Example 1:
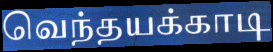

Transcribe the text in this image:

வெந்தயக்காடி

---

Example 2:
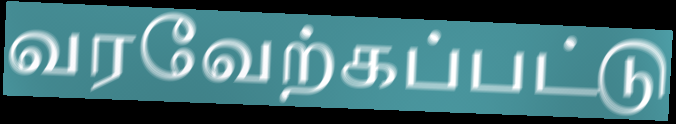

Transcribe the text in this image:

வரவேற்கப்பட்டு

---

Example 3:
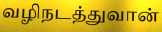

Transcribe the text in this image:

வழிநடத்துவான்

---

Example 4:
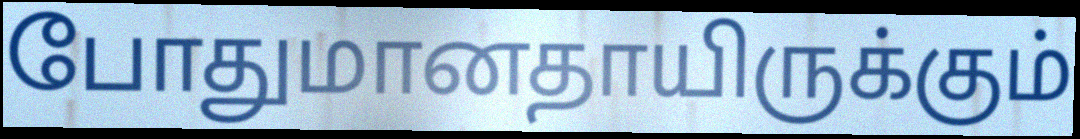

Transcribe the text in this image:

போதுமானதாயிருக்கும்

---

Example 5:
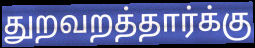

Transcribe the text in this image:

துறவறத்தார்க்கு